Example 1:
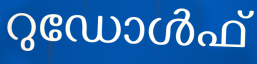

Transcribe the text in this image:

റുഡോൾഫ്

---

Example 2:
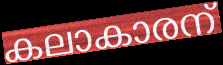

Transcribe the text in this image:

കലാകാരന്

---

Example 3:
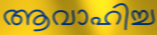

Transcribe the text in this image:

ആവാഹിച്ച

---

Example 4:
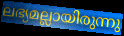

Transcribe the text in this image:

ലഭ്യമല്ലായിരുന്നു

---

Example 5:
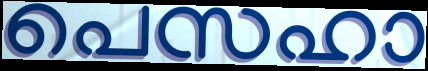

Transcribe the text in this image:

പെസഹാ